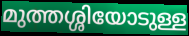
മുത്തശ്ശിയോടുള്ള